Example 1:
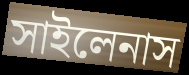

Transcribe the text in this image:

সাইলেনাস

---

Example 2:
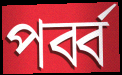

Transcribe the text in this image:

পর্ব্ব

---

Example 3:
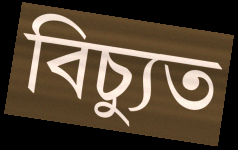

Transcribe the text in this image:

বিচ্যুত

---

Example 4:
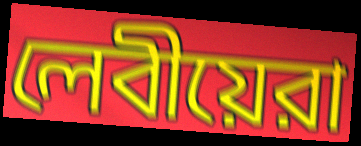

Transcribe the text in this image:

লেবীয়েরা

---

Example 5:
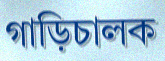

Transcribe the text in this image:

গাড়িচালক